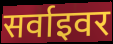
सर्वाइवर